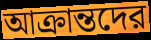
আক্রান্তদের